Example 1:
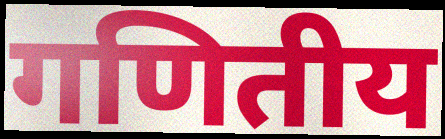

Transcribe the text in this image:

गणितीय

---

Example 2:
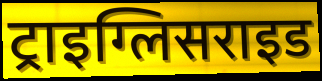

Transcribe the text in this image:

ट्राइग्लिसराइड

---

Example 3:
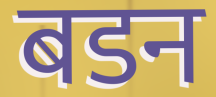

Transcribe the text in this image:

बडन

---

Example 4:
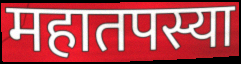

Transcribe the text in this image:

महातपस्या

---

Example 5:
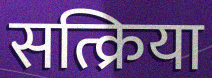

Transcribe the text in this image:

सत्क्रिया